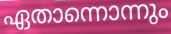
ഏതാന്നൊന്നും